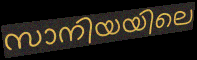
സാനിയയിലെ